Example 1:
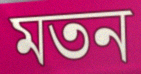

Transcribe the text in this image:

মতন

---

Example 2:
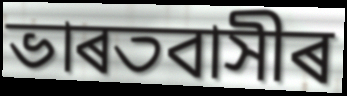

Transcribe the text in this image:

ভাৰতবাসীৰ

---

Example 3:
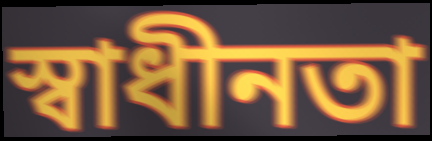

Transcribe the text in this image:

স্বাধীনতা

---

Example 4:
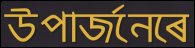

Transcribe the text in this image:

উপাৰ্জনেৰে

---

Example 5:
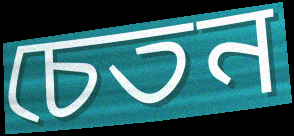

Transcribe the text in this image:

চেতন